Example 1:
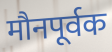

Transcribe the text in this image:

मौनपूर्वक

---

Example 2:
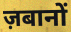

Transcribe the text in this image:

ज़बानों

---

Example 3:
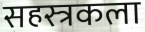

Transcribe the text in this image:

सहस्त्रकला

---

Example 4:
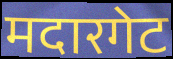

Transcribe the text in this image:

मदारगेट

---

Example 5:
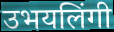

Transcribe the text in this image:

उभयलिंगी